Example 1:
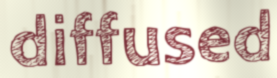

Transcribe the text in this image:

diffused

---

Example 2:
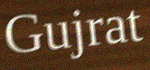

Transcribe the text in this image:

Gujrat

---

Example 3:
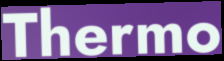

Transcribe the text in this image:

Thermo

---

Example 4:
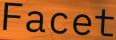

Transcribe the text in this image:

Facet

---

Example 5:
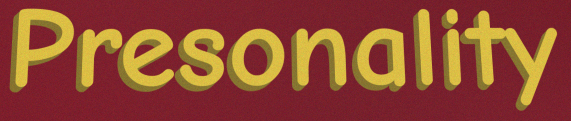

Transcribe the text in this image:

Presonality